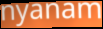
nyanam